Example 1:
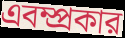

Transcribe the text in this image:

এবম্প্রকার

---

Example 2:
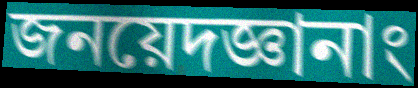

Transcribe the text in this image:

জনয়েদজ্ঞানাং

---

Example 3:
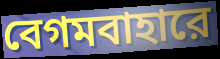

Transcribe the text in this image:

বেগমবাহারে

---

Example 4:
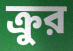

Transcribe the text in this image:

ক্রুর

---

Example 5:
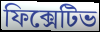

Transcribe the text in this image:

ফিক্সেটিভ